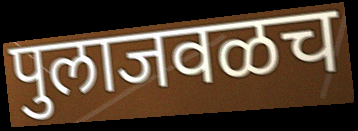
पुलाजवळच